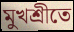
মুখশ্রীতে